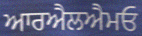
ਆਰਐਲਐਮਓ